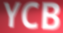
YCB